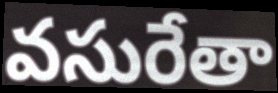
వసురేతా